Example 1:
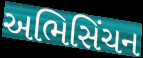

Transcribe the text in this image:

અભિસિંચન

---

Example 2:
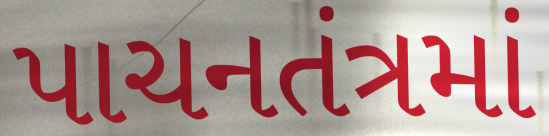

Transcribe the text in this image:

પાચનતંત્રમાં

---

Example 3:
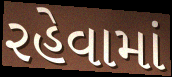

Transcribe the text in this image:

રહેવામાં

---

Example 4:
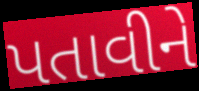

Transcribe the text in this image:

પતાવીને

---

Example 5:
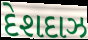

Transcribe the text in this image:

દેશદાઝ